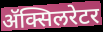
ॲक्सिलरेटर